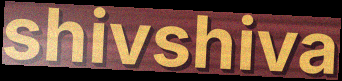
shivshiva